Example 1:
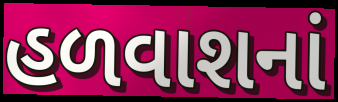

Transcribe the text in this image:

હળવાશનાં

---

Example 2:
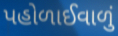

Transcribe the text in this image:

પહોળાઈવાળું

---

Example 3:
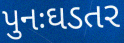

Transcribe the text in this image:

પુનઃઘડતર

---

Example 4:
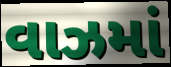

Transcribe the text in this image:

વાઝમાં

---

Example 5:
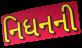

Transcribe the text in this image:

નિધનની